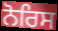
ਨੋਰਿਸ